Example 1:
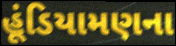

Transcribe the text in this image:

હૂંડિયામણના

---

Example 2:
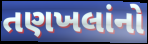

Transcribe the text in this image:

તણખલાંનો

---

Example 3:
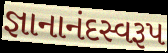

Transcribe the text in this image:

જ્ઞાનાનંદસ્વરૂપ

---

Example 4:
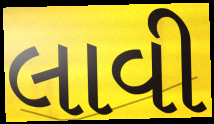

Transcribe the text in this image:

લાવી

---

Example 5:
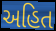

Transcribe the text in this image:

અહિત